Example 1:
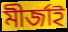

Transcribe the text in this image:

মীর্জাই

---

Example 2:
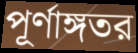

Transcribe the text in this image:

পূর্ণাঙ্গতর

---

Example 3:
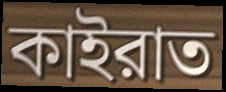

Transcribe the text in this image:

কাইরাত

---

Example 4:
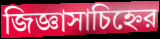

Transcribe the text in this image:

জিজ্ঞাসাচিহ্নের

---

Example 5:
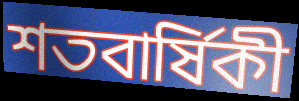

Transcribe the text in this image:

শতবার্ষিকী